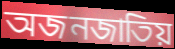
অজনজাতিয়